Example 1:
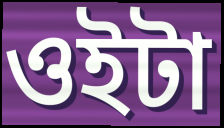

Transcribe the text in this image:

ওইটা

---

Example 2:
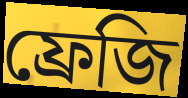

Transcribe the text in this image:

ফ্রেজি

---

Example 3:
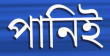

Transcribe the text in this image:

পানিই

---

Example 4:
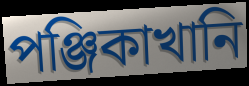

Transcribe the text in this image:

পঞ্জিকাখানি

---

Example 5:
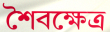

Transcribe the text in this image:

শৈবক্ষেত্র